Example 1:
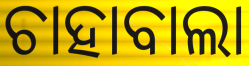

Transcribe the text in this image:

ଚାହାବାଲା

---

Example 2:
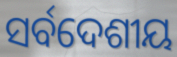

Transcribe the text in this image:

ସର୍ବଦେଶୀୟ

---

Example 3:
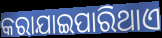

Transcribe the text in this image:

କରାଯାଇପାରିଥାଏ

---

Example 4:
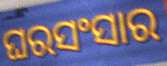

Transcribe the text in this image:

ଘରସଂସାର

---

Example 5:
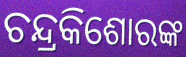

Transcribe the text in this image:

ଚନ୍ଦ୍ରକିଶୋରଙ୍କ